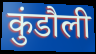
कुंडौली